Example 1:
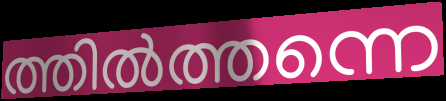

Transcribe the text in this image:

ത്തിൽത്തന്നെ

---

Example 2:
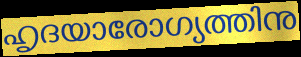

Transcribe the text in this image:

ഹൃദയാരോഗ്യത്തിനു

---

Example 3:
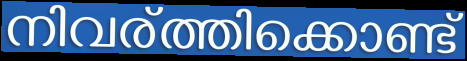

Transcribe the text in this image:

നിവര്ത്തിക്കൊണ്ട്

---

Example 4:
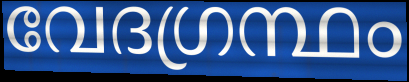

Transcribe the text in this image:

വേദഗ്രന്ഥം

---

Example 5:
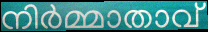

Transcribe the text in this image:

നിർമ്മാതാവ്